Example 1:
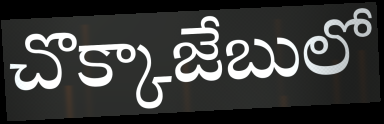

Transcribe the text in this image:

చొక్కాజేబులో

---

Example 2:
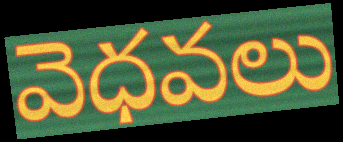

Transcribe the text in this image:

వెధవలు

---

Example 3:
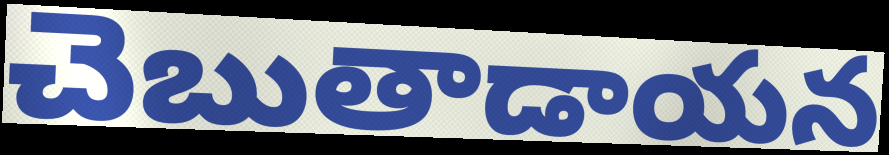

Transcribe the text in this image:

చెబుతాడాయన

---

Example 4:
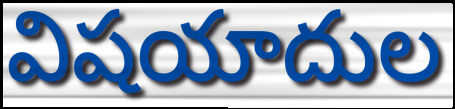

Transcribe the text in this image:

విషయాదుల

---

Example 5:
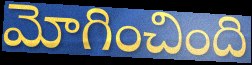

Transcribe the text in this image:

మోగించింది